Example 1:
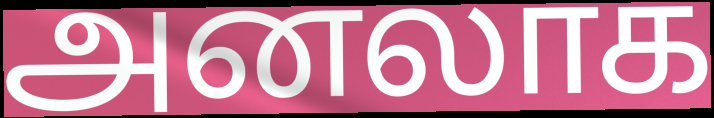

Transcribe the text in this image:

அனலாக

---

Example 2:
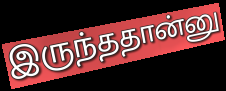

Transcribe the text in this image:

இருந்ததான்னு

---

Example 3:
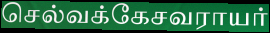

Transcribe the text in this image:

செல்வக்கேசவராயர்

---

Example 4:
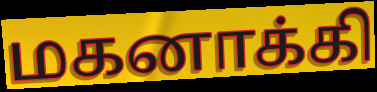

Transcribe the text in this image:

மகனாக்கி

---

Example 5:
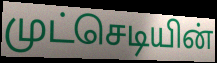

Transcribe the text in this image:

முட்செடியின்